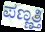
ಪಣ್ಣತ್ತಿ